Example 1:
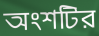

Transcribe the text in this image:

অংশটির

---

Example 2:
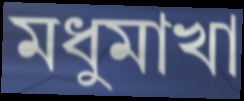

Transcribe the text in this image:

মধুমাখা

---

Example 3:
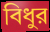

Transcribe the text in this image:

বিধুর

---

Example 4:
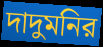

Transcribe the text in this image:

দাদুমনির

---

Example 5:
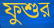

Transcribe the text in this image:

ফুশুর